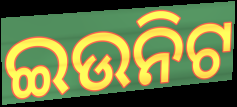
ଇଉନିଟ